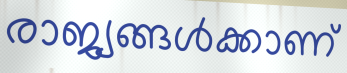
രാജ്യങ്ങൾക്കാണ്